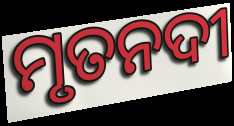
ମୃତନଦୀ